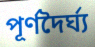
পূৰ্ণদৈৰ্ঘ্য